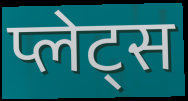
प्‍लेट्स